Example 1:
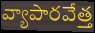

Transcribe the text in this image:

వ్యాపారవేత్త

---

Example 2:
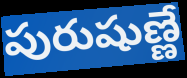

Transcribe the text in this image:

పురుషుణ్ణే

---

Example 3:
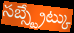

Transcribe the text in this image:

సబ్స్ట్రేట్కు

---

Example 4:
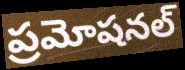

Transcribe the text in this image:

ప్రమోషనల్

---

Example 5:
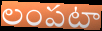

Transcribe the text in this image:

లంపటా